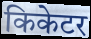
किकेटर